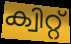
ക്വിറ്റ്